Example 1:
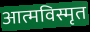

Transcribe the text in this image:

आत्मविस्मृत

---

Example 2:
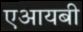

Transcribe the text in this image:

एआयबी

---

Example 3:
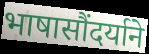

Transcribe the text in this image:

भाषासौंदर्याने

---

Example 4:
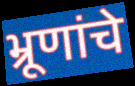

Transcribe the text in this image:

भ्रूणांचे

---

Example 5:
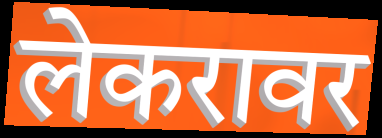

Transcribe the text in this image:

लेकरावर